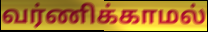
வர்ணிக்காமல்